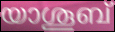
യാശൂബ്